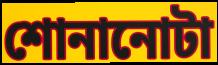
শোনানোটা